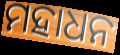
ମହାଧନ